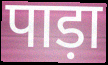
पाड़ा